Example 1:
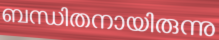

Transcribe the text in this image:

ബന്ധിതനായിരുന്നു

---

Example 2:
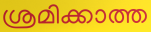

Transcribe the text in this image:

ശ്രമിക്കാത്ത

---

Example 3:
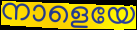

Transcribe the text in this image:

നാളെയേ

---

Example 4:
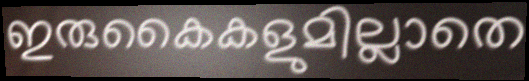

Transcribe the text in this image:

ഇരുകൈകളുമില്ലാതെ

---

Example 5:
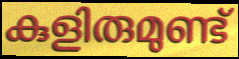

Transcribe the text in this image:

കുളിരുമുണ്ട്